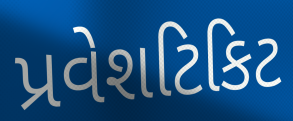
પ્રવેશટિકિટ